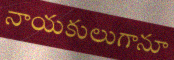
నాయకులుగానూ